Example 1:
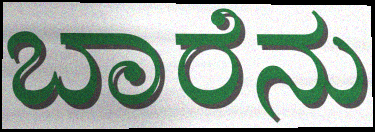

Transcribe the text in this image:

ಬಾರೆನು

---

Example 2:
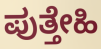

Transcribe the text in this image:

ಪುತ್ತೇಹಿ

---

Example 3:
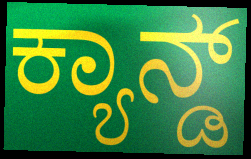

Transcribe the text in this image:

ಕ್ಯಾನ್ಡ್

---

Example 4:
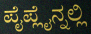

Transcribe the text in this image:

ಪೈಪ್ಲೈನ್ನಲ್ಲಿ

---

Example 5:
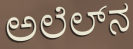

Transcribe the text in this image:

ಅಲೆಲ್‌ನ